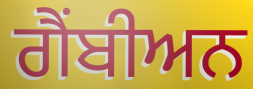
ਗੈਂਬੀਅਨ